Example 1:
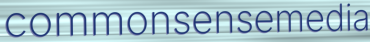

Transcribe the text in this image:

commonsensemedia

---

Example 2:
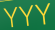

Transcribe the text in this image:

YYY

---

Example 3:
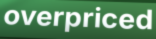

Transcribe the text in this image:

overpriced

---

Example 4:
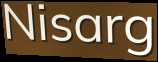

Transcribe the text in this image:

Nisarg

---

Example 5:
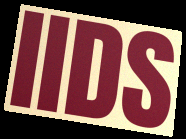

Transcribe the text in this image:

IIDS